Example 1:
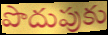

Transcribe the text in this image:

పొదుపుకు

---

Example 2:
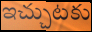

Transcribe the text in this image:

ఇచ్చుటకు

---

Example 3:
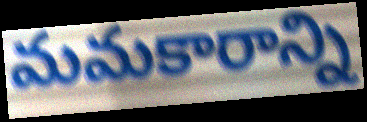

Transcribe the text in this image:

మమకారాన్ని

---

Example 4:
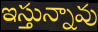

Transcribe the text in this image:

ఇస్తున్నావు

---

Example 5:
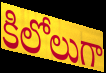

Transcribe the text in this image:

కిలోలుగా